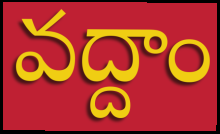
వద్దాం